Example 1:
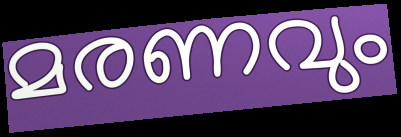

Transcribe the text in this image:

മരണവും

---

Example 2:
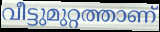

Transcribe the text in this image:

വീട്ടുമുറ്റത്താണ്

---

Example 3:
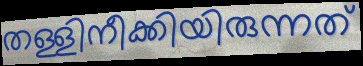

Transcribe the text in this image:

തള്ളിനീക്കിയിരുന്നത്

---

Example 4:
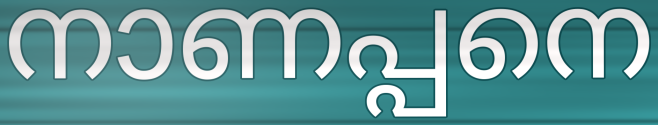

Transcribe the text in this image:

നാണപ്പനെ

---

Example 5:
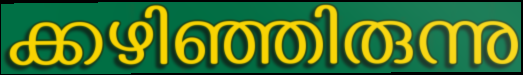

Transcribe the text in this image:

ക്കഴിഞ്ഞിരുന്നു